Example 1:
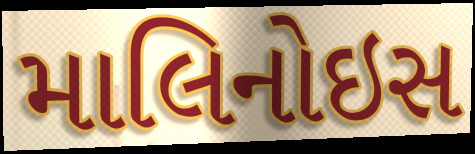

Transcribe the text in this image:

માલિનોઇસ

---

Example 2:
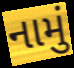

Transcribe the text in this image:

નામું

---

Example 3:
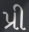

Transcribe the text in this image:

પ્રી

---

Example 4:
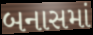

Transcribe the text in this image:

બનાસમાં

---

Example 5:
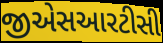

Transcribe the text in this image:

જીએસઆરટીસી